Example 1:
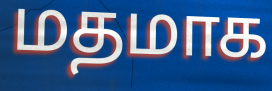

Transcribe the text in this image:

மதமாக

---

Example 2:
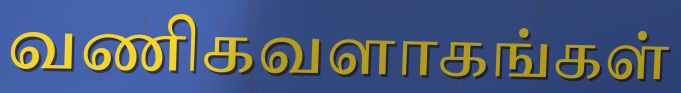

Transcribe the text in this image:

வணிகவளாகங்கள்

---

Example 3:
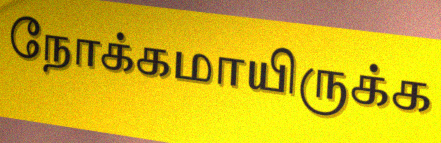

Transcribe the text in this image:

நோக்கமாயிருக்க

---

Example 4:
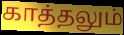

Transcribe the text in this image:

காத்தலும்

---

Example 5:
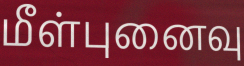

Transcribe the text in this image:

மீள்புனைவு